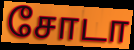
சோடா